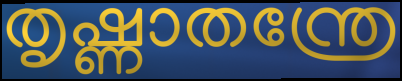
തൃഷ്ണാതന്ത്രേ